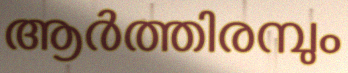
ആർത്തിരമ്പും